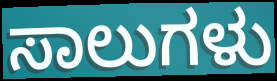
ಸಾಲುಗಳು